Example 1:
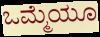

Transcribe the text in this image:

ಒಮ್ಮೆಯೂ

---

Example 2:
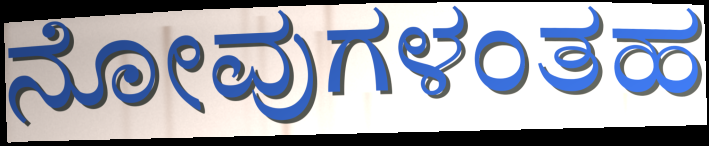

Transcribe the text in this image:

ನೋವುಗಳಂತಹ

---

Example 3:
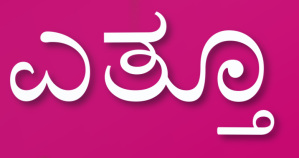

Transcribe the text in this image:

ಎತ್ತೂ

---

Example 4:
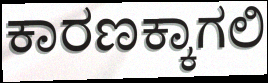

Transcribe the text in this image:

ಕಾರಣಕ್ಕಾಗಲಿ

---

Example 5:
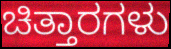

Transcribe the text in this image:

ಚಿತ್ತಾರಗಳು